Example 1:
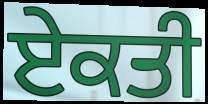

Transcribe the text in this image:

ਏਕਤੀ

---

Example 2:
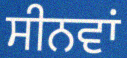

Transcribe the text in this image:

ਸੀਨਵਾਂ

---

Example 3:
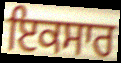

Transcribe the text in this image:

ਇਕਸਾਰ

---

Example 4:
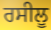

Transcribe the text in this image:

ਰਸੀਲੂ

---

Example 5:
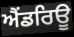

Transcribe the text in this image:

ਐਂਡਰਿਊ